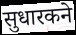
सुधारकने